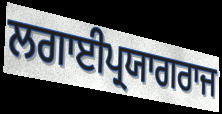
ਲਗਾਈਪ੍ਰਯਾਗਰਾਜ